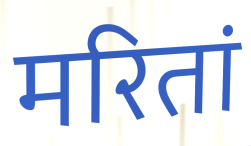
मरितां